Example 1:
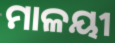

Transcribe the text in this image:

ମାଳୟୀ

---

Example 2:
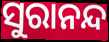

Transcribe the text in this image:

ସୁରାନନ୍ଦ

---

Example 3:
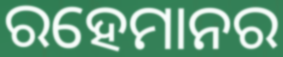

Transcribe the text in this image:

ରହେମାନର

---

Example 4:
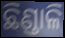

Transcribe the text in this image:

ଛିଣ୍ଡାଳି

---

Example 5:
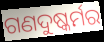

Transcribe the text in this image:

ଗଣଦୁଷ୍କର୍ମର